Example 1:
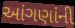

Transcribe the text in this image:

આંગણાંની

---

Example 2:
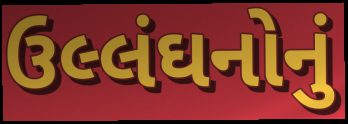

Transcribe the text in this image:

ઉલ્લંઘનોનું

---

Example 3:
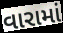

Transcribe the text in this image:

વારામાં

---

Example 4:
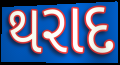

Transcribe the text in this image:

થરાદ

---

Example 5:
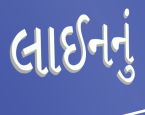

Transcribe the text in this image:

લાઈનનું